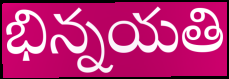
భిన్నయతి